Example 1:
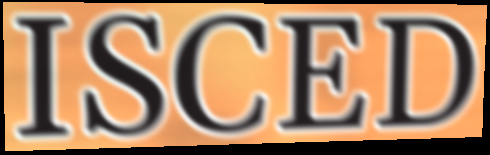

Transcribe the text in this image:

ISCED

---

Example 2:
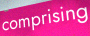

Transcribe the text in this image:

comprising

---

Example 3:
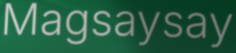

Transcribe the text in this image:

Magsaysay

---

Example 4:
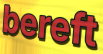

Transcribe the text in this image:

bereft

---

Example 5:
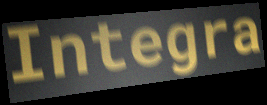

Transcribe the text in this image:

Integra